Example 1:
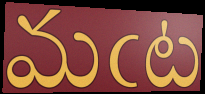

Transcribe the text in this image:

మఁట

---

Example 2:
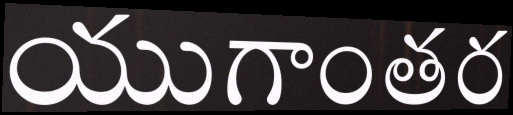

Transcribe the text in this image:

యుగాంతర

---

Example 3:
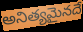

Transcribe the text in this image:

అనిత్యమైనదే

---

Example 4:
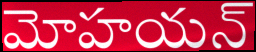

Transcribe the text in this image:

మోహయన్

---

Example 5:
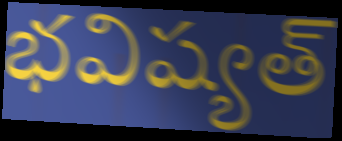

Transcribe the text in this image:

భవిష్యత్